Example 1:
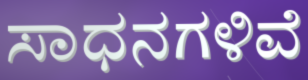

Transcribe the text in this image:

ಸಾಧನಗಳಿವೆ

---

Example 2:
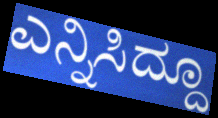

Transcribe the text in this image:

ಎನ್ನಿಸಿದ್ದೂ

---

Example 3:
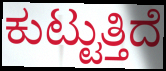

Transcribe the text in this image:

ಕುಟ್ಟುತ್ತಿದೆ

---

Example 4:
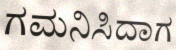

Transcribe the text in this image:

ಗಮನಿಸಿದಾಗ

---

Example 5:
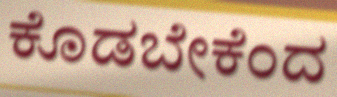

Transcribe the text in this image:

ಕೊಡಬೇಕೆಂದ